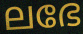
ലഭേ